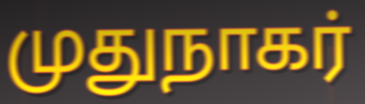
முதுநாகர்